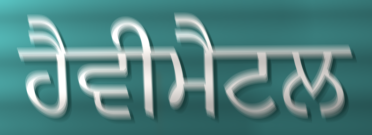
ਹੈਵੀਮੈਟਲ